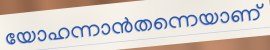
യോഹന്നാൻതന്നെയാണ്